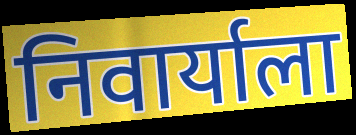
निवार्याला